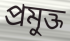
প্রমুক্ত